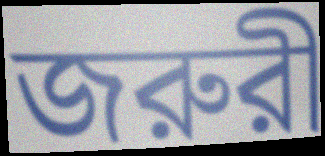
জরুরী